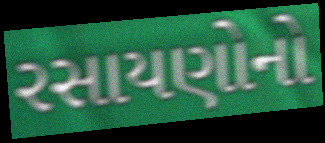
રસાયણોનો